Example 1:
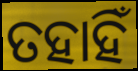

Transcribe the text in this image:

ତହାହିଁ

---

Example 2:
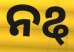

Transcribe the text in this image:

ନୡ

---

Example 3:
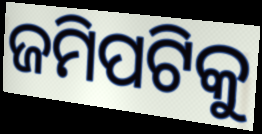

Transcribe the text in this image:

ଜମିପଟିକୁ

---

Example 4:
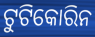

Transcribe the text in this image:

ଟୁଟିକୋରିନ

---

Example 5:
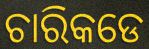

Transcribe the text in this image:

ଚାରିକଡେ